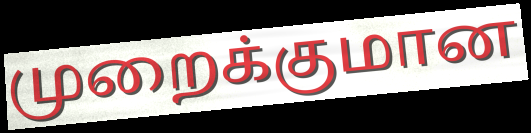
முறைக்குமான